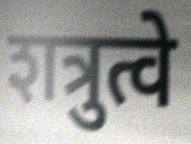
शत्रुत्वे